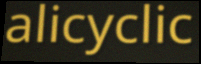
alicyclic